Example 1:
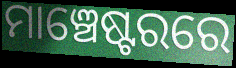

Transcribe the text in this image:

ମାଞ୍ଚେଷ୍ଟରରେ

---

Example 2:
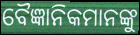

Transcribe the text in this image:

ବୈଜ୍ଞାନିକମାନଙ୍କୁ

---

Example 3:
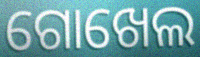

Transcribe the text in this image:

ଗୋଖେଲ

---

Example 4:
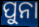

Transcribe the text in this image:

ପୁନା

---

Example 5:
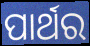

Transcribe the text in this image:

ପାର୍ଥର